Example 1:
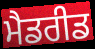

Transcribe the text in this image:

ਮੈਡਰੀਡ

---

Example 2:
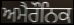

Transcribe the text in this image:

ਅਮੈਰੌਨਿਕ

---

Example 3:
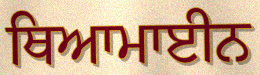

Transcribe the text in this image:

ਥਿਆਮਾਈਨ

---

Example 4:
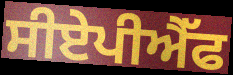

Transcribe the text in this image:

ਸੀਏਪੀਐੱਫ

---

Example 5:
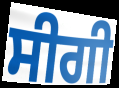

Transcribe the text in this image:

ਸੀਗੀ